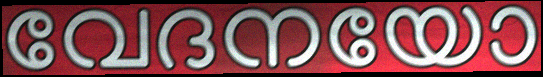
വേദനയോ